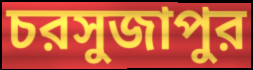
চরসুজাপুর